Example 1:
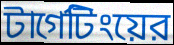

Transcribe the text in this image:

টার্গেটিংয়ের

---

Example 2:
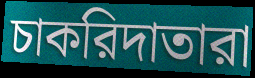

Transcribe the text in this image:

চাকরিদাতারা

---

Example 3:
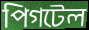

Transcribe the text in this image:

পিগটেল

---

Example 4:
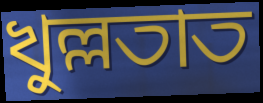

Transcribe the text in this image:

খুল্লতাত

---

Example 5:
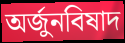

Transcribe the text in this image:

অর্জুনবিষাদ